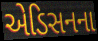
એડિસનના